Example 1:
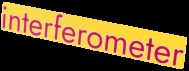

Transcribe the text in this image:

interferometer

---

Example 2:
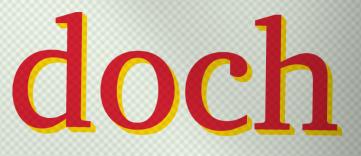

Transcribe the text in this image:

doch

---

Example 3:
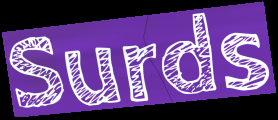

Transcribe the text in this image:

Surds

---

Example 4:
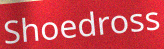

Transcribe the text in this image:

Shoedross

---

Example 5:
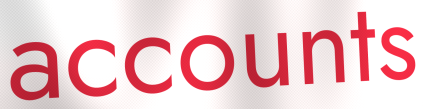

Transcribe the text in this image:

accounts